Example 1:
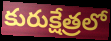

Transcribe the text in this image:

కురుక్షేత్రలో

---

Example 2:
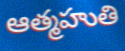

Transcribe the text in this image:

ఆత్మహుతి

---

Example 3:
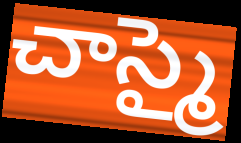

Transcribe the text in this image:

చాస్మై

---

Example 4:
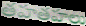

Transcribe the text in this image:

తహతహలు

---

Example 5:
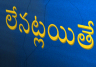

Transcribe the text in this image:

లేనట్లయితే